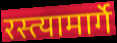
रस्त्यामार्गे